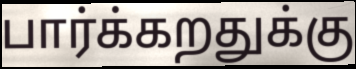
பார்க்கறதுக்கு